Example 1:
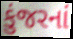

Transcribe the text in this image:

કુંજરનાં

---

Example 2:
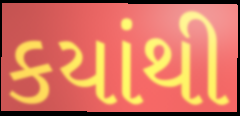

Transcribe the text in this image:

કયાંથી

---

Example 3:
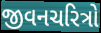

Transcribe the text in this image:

જીવનચરિત્રો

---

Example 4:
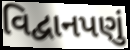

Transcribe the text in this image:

વિદ્વાનપણું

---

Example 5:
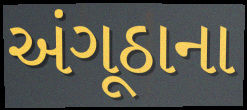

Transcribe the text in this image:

અંગૂઠાના